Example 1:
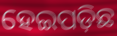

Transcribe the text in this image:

ହେଇପଡ଼ିଛ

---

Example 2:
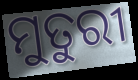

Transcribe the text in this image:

ମୁତୁରୀ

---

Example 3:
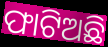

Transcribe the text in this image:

ଫାଟିଅଛି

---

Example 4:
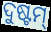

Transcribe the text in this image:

ଦୁଷ୍ଟମ୍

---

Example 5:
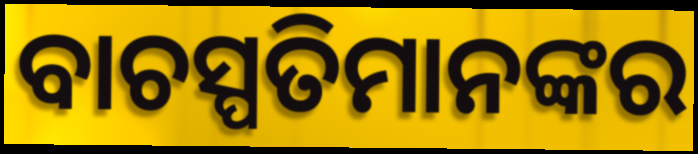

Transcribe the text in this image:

ବାଚସ୍ପତିମାନଙ୍କର